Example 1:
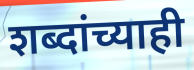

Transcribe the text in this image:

शब्दांच्याही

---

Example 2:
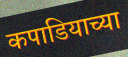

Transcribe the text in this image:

कपाडियाच्या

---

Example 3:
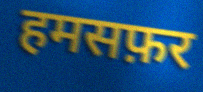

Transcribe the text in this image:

हमसफ़र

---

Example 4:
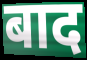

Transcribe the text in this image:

बाद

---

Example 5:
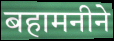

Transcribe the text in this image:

बहामनीने